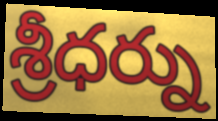
శ్రీధర్ను